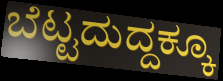
ಬೆಟ್ಟದುದ್ದಕ್ಕೂ